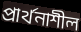
প্রার্থনাশীল